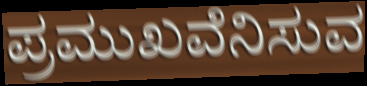
ಪ್ರಮುಖವೆನಿಸುವ